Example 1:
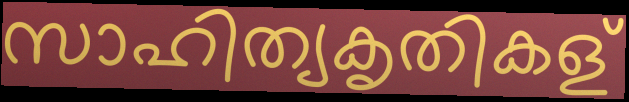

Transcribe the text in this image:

സാഹിത്യകൃതികള്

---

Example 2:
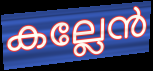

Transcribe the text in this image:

കല്ലേൻ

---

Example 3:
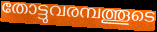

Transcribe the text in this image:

തോട്ടുവരമ്പത്തൂടെ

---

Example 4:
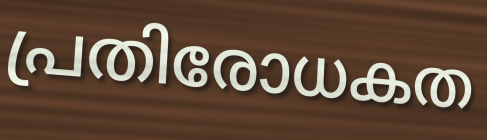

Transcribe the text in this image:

പ്രതിരോധകത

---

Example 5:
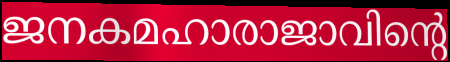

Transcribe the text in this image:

ജനകമഹാരാജാവിന്റെ